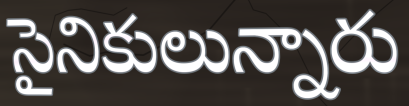
సైనికులున్నారు